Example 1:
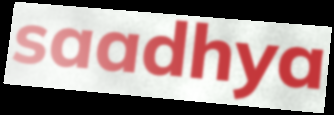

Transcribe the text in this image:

saadhya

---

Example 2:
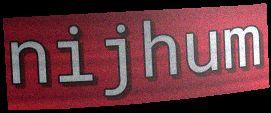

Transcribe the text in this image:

nijhum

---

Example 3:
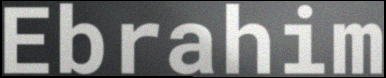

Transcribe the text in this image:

Ebrahim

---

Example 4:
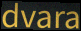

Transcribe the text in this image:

dvara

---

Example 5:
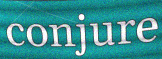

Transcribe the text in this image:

conjure